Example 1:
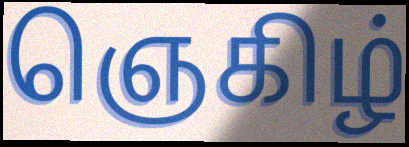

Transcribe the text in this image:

ஞெகிழ்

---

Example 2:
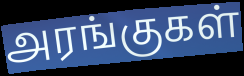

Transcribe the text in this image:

அரங்குகள்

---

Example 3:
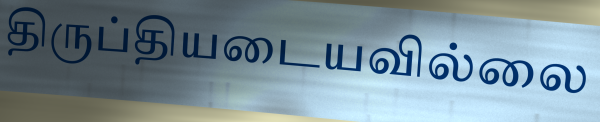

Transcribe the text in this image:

திருப்தியடையவில்லை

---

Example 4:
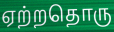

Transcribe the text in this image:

ஏற்றதொரு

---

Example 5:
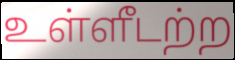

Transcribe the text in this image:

உள்ளீடற்ற